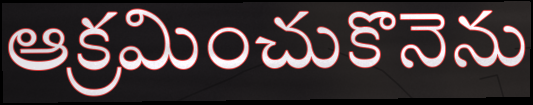
ఆక్రమించుకొనెను